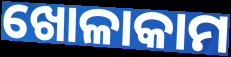
ଖୋଳାକାମ